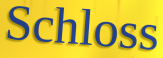
Schloss